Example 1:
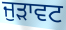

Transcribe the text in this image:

ਜੁੜਾਵਟ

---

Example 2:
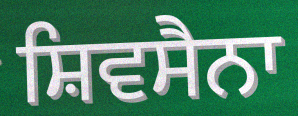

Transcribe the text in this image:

ਸ਼ਿਵਸੈਨਾ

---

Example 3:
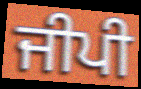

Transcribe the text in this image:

ਜੀਪੀ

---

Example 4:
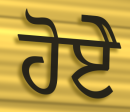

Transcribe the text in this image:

ਹੋਏੇ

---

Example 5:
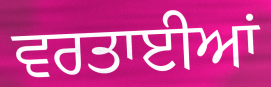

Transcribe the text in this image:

ਵਰਤਾਈਆਂ